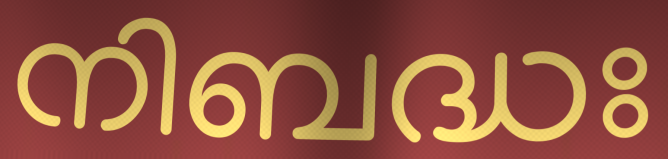
നിബദ്ധഃ